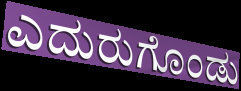
ಎದುರುಗೊಂಡು